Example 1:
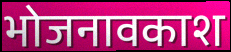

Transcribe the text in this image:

भोजनावकाश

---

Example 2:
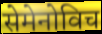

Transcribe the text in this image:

सेमेनोविच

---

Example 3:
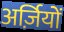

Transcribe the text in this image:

अर्ज़ियों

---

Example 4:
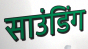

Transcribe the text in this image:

साउंडिंग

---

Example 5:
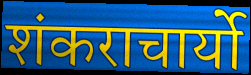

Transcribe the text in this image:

शंकराचार्यो